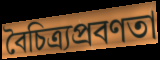
বৈচিত্র্যপ্রবণতা